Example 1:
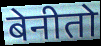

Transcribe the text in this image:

बेनीतो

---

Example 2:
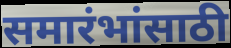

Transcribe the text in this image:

समारंभांसाठी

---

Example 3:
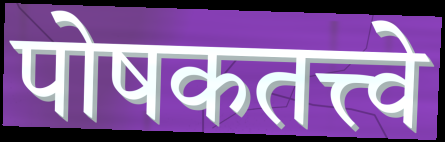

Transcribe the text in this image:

पोषकतत्त्वे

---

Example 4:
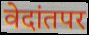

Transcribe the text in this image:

वेदांतपर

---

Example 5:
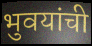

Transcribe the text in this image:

भुवयांची